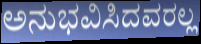
ಅನುಭವಿಸಿದವರಲ್ಲ